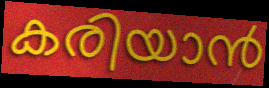
കരിയാൻ